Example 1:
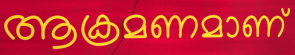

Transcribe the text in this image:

ആക്രമണമാണ്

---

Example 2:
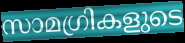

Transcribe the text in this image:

സാമഗ്രികളുടെ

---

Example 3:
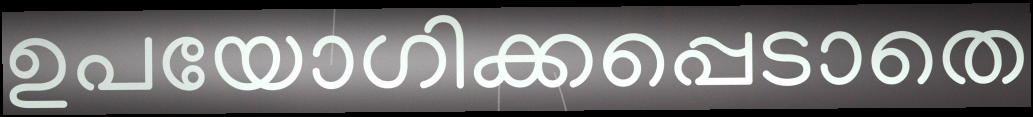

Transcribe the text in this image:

ഉപയോഗിക്കപ്പെടാതെ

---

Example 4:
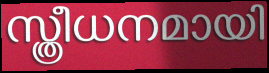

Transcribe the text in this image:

സ്ത്രീധനമായി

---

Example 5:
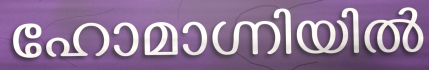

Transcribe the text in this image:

ഹോമാഗ്നിയിൽ